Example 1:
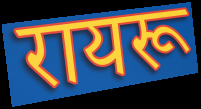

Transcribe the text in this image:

रायरू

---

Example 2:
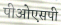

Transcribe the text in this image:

पीओएसपी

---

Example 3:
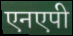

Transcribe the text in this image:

एनएपी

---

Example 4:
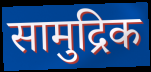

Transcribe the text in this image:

सामुद्रिक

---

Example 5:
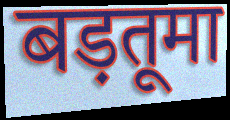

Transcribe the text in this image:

बड़तूमा